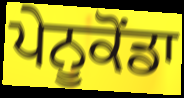
ਪੇਨੂਕੋਂਡਾ